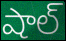
షాల్